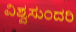
ವಿಶ್ವಸುಂದರಿ